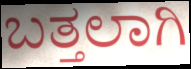
ಬತ್ತಲಾಗಿ